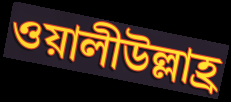
ওয়ালীউল্লাহ্র